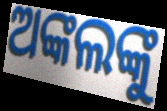
ଅଙ୍କଲଙ୍କୁ